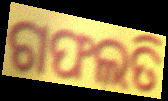
ଗଫଲତି